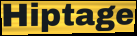
Hiptage